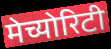
मेच्योरिटी